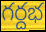
గర్దభ